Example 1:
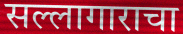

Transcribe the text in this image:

सल्लागाराचा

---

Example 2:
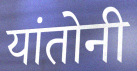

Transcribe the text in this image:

यांतोनी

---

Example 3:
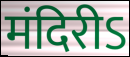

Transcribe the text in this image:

मंदिरीऽ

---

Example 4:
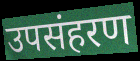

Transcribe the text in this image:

उपसंहरण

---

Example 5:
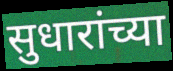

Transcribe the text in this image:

सुधारांच्या